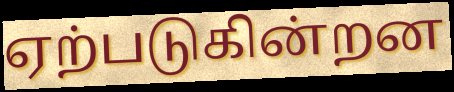
ஏற்படுகின்றன